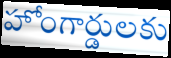
హోంగార్డులకు